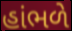
હાંભળે